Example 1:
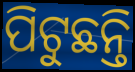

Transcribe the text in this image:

ପିଟୁଛନ୍ତି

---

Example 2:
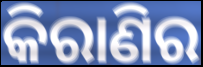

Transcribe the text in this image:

କିରାଣିର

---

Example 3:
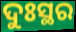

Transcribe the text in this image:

ଦୁଃସ୍ଥର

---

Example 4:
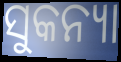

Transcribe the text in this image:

ସୁକନ୍ୟା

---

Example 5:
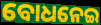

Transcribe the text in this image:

ବୋଧନେଇ